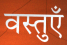
वस्‍तुएँ